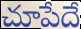
చూపేదే